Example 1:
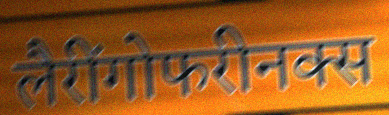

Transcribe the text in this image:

लैरींगोफरीनक्स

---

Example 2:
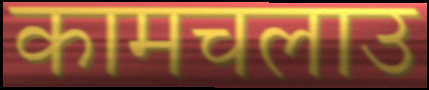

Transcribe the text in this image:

कामचलाउ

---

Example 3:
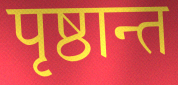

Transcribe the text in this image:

पृष्ठान्त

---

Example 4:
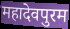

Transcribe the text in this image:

महादेवपुरम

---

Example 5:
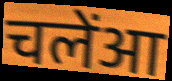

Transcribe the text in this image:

चलेंआ